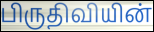
பிருதிவியின்